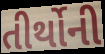
તીર્થોની